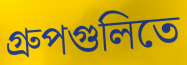
গ্রুপগুলিতে